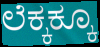
ಲೆಕ್ಕಕ್ಕೂ